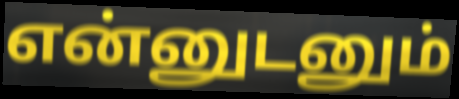
என்னுடனும்